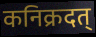
कनिक्रदत्